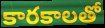
కారకాలతో